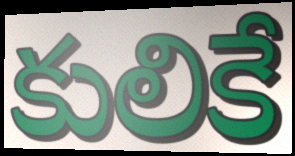
కులికే